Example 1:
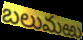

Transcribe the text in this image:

బలుమఱు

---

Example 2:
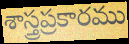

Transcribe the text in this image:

శాస్త్రప్రకారము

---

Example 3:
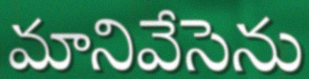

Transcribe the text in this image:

మానివేసెను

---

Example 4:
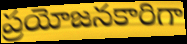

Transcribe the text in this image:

ప్రయోజనకారిగా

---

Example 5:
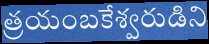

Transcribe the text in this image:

త్రయంబకేశ్వరుడిని